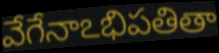
వేగేనాఽభిపతితా